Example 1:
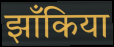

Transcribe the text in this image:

झाँकिया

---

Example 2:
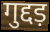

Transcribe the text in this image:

गुद्दड़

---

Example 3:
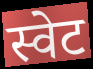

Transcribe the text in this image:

स्वेट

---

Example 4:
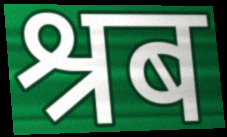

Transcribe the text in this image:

श्रब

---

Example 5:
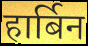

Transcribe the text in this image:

हार्बिन